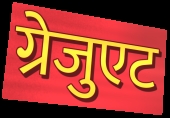
ग्रेजुएट